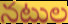
నటుల